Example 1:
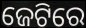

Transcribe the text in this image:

ଜେଟିରେ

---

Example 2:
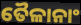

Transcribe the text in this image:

ତୈଳାନାଂ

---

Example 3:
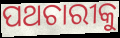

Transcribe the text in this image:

ପଥଚାରୀକୁ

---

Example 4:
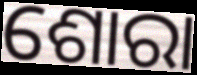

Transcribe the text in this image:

ଶୋରା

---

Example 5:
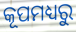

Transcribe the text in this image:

କୂପମଧ୍ୟରୁ